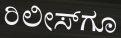
ರಿಲೀಸ್‌ಗೂ